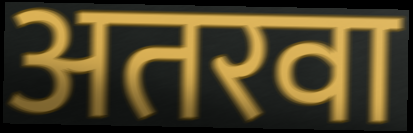
अतरवा